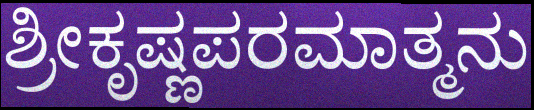
ಶ್ರೀಕೃಷ್ಣಪರಮಾತ್ಮನು